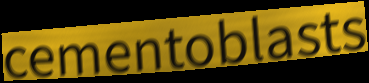
cementoblasts